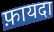
फ़ायदा